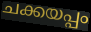
ചക്കയപ്പം